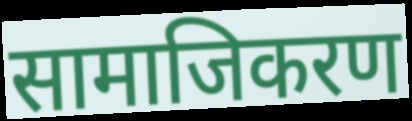
सामाजिकरण